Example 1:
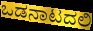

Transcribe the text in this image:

ಒಡನಾಟದಲಿ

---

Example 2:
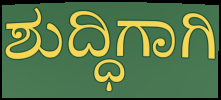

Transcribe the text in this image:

ಶುದ್ಧಿಗಾಗಿ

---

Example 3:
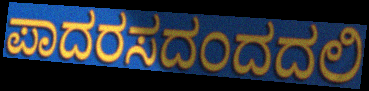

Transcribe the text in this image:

ಪಾದರಸದಂದದಲಿ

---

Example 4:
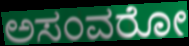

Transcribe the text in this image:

ಅಸಂವರೋ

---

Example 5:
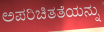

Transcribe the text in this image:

ಅಪರಿಚಿತತೆಯನ್ನು